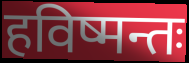
हविष्मन्तः